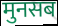
मुनसब